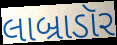
લાબ્રાડૉર